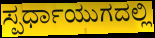
ಸ್ಪರ್ಧಾಯುಗದಲ್ಲಿ